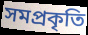
সমপ্রকৃতি